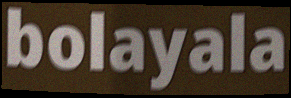
bolayala